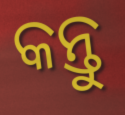
କନ୍ତୁ